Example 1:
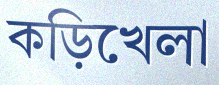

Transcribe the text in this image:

কড়িখেলা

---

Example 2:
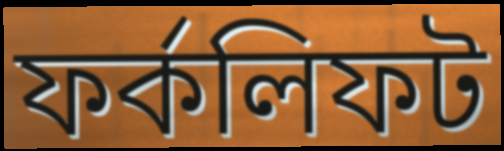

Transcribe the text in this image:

ফর্কলিফট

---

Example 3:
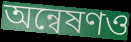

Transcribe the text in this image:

অন্বেষণও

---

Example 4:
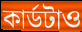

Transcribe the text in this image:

কার্ডটাও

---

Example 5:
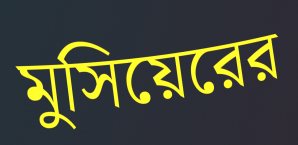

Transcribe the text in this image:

মুসিয়েরের